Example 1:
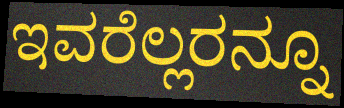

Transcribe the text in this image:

ಇವರೆಲ್ಲರನ್ನೂ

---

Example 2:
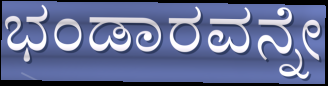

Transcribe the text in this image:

ಭಂಡಾರವನ್ನೇ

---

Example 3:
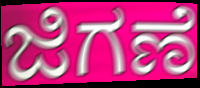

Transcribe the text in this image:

ಜಿಗಣೆ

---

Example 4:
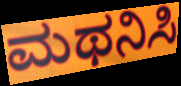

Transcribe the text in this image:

ಮಥನಿಸಿ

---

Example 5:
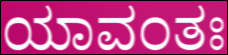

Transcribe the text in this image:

ಯಾವಂತಃ